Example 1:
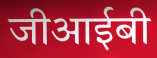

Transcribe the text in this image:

जीआईबी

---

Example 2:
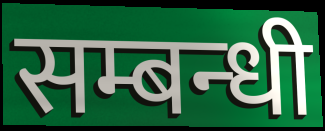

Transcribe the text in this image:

सम्‍बन्‍धी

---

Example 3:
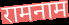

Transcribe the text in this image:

रामनाम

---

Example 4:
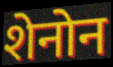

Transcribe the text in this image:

शेनोन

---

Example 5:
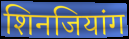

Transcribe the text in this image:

शिनजियांग